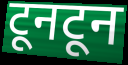
टूनटून